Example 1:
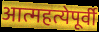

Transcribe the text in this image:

आत्महत्येपूर्वी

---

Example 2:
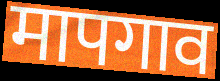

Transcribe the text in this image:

मापगाव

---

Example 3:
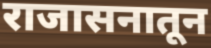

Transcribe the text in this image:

राजासनातून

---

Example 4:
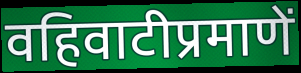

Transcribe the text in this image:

वहिवाटीप्रमाणें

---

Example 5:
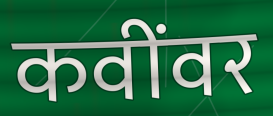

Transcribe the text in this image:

कवींवर